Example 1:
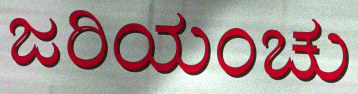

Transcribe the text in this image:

ಜರಿಯಂಚು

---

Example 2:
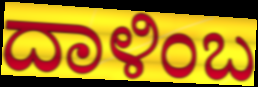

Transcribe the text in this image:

ದಾಳಿಂಬ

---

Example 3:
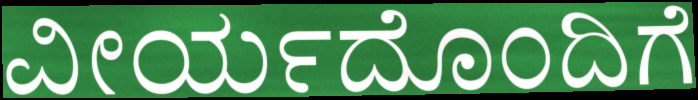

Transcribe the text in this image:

ವೀರ್ಯದೊಂದಿಗೆ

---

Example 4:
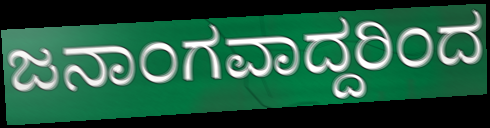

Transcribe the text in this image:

ಜನಾಂಗವಾದ್ದರಿಂದ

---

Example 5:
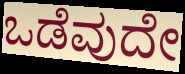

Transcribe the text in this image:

ಒಡೆವುದೇ